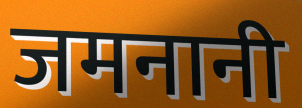
जमनानी